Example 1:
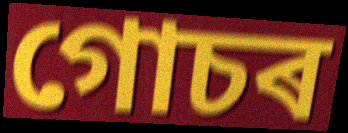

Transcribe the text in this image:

গোচৰ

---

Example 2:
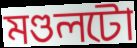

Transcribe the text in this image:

মণ্ডলটো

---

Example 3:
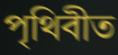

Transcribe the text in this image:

পৃথিবীত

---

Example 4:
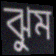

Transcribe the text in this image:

ঝুম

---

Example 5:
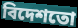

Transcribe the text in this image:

বিদেশতো